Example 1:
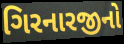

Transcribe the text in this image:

ગિરનારજીનો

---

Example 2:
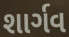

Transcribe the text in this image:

શાર્ગવ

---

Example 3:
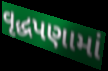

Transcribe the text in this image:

વૃદ્ધપણામાં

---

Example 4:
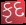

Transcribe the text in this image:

કૃદ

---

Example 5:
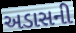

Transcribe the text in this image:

અડાસની